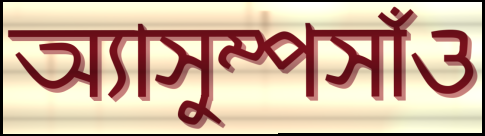
অ্যাসুম্পসাঁও